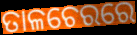
ତାଳଚେରରେ